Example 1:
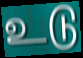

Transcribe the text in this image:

உடு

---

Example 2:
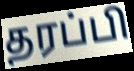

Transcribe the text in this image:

தரப்பி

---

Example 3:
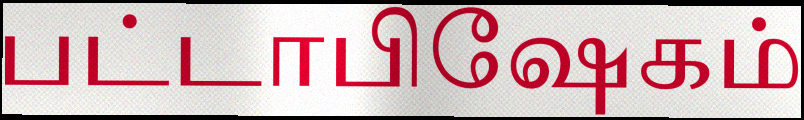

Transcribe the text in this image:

பட்டாபிஷேகம்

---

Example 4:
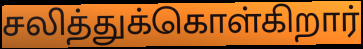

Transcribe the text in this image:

சலித்துக்கொள்கிறார்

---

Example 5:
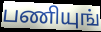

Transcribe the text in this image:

பணியுங்